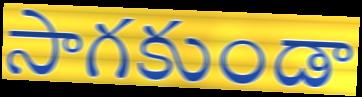
సాగకుండా